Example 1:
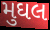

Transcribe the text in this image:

મુઘલ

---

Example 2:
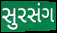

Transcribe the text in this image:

સુરસંગ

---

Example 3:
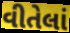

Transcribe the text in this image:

વીતેલાં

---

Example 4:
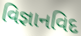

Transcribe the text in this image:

વિજ્ઞાનવિદ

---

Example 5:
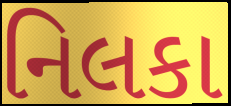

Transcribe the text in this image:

નિલકા